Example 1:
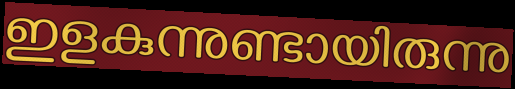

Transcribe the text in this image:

ഇളകുന്നുണ്ടായിരുന്നു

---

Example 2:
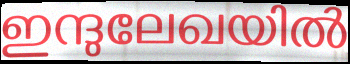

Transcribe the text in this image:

ഇന്ദുലേഖയിൽ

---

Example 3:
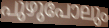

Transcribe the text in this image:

പുഴുപോലും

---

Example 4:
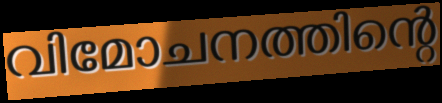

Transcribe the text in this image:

വിമോചനത്തിന്റെ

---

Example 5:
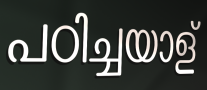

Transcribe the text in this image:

പഠിച്ചയാള്